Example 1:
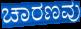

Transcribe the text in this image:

ಚಾರಣವು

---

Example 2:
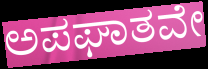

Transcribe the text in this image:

ಅಪಘಾತವೇ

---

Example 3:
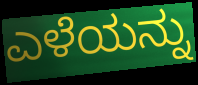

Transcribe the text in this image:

ಎಳೆಯನ್ನು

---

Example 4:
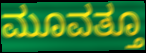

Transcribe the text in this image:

ಮೂವತ್ತೂ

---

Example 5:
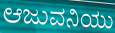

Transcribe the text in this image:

ಆಜುವನಿಯು